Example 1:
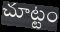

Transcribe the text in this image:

చూట్టం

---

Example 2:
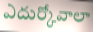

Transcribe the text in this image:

ఎదుర్కోవాలా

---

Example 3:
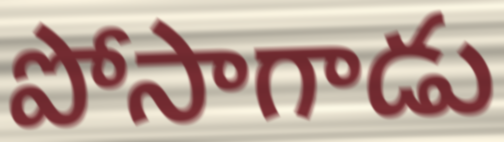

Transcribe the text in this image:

పోసాగాడు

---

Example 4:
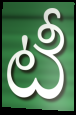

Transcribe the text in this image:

టీ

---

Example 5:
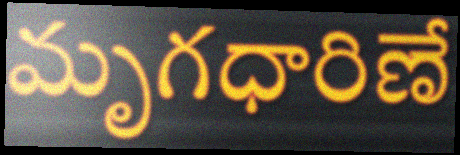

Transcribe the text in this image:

మృగధారిణే